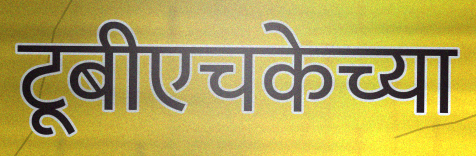
टूबीएचकेच्या